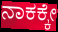
ನಾಕಕ್ಕೇ